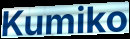
Kumiko